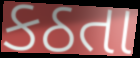
કઠતા